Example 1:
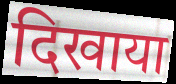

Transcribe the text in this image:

दिखाया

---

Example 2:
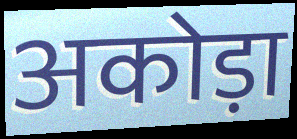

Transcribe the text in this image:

अकोड़ा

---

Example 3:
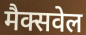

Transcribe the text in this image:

मैक्सवेल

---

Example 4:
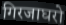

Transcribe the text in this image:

गिरजाघरो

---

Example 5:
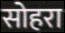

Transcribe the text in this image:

सोहरा